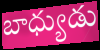
బాధ్యుడు